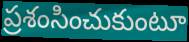
ప్రశంసించుకుంటూ